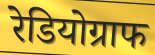
रेडियोग्राफ